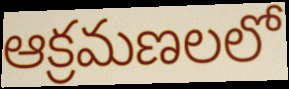
ఆక్రమణలలో